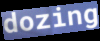
dozing